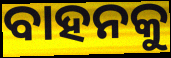
ବାହନକୁ